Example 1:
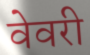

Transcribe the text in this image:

वेवरी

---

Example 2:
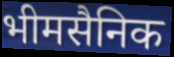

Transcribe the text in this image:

भीमसैनिक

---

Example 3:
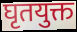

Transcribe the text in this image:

घृतयुक्त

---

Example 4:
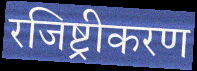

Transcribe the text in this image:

रजिष्ट्रीकरण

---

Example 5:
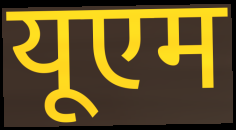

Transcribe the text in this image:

यूएम